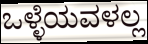
ಒಳ್ಳೆಯವಳಲ್ಲ